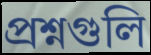
প্রশ্নগুলি